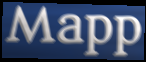
Mapp